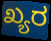
ಖ್ಯರ